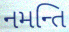
નમન્તિ